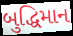
બુદ્ધિમાન